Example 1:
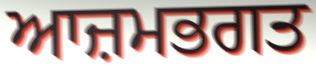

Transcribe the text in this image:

ਆਜ਼ਮਭਗਤ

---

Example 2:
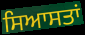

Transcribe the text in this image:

ਸਿਆਸਤਾਂ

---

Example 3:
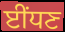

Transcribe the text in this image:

ਈਂਧਣ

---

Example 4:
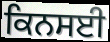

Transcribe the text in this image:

ਕਿਨਸਈ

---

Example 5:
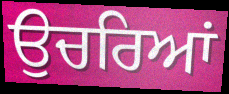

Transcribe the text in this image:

ਉਚਰਿਆਂ